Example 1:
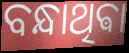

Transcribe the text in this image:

ବନ୍ଧାଥିଵା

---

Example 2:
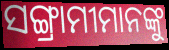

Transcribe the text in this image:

ସଙ୍ଗ୍ରାମୀମାନଙ୍କୁ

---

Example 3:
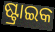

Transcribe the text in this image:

ଷ୍ଟ୍ରାଇକ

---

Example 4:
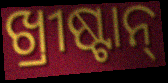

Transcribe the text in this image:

ଖ୍ରୀଷ୍ଟାନ୍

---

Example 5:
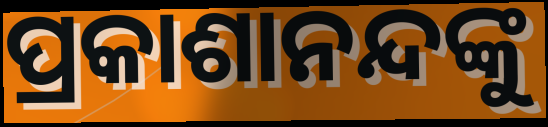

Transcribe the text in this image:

ପ୍ରକାଶାନନ୍ଦଙ୍କୁ